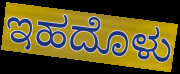
ಇಹದೊಳು